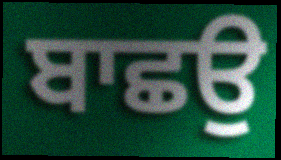
ਬਾਛਉ